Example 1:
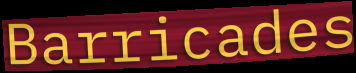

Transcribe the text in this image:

Barricades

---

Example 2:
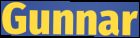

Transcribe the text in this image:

Gunnar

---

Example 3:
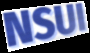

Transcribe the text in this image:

NSUI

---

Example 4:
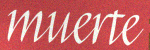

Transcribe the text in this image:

muerte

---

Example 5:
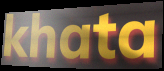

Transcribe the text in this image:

khata